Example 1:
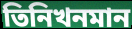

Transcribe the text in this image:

তিনিখনমান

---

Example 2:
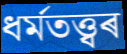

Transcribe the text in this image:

ধৰ্মতত্ত্বৰ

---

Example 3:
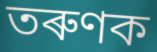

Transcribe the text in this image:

তৰুণক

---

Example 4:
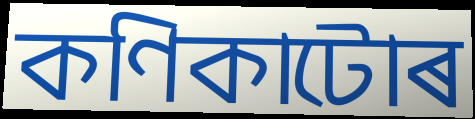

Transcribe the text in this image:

কণিকাটোৰ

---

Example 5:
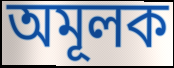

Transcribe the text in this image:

অমূলক